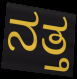
ನತ್ತ